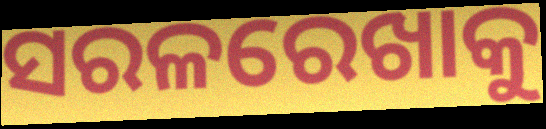
ସରଳରେଖାକୁ